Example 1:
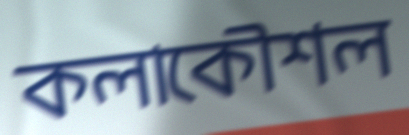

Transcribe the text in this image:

কলাকৌশল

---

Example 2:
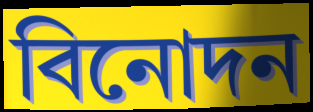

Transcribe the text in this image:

বিনোদন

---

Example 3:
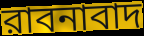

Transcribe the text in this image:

রাবনাবাদ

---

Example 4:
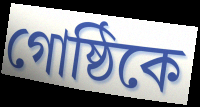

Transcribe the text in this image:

গোষ্ঠিকে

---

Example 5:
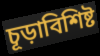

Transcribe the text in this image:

চূড়াবিশিষ্ট